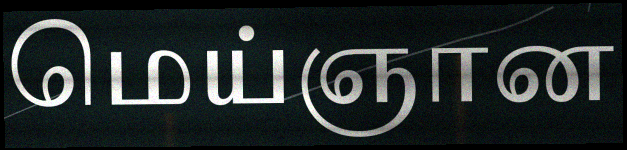
மெய்ஞான